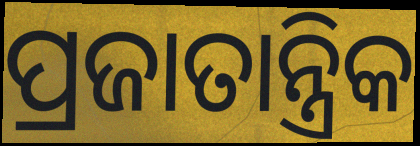
ପ୍ରଜାତାନ୍ତ୍ରିକ